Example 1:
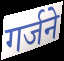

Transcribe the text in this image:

गर्जने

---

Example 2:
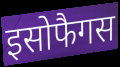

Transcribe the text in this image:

इसोफैगस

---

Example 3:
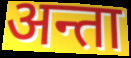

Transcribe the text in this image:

अन्ता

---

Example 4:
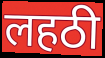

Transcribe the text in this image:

लहठी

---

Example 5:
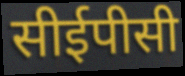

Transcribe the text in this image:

सीईपीसी